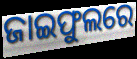
ଜାଇଫୁଲରେ